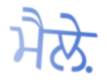
ਮੈਲ਼ੇ